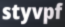
styvpf